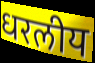
धरलीय